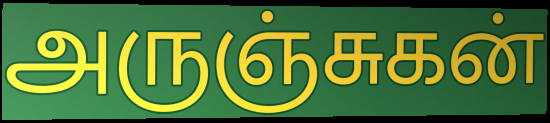
அருஞ்சுகன்